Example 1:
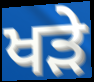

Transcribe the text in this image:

ਖਡ਼ੇ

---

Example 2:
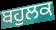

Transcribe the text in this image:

ਬਹੁਲਕ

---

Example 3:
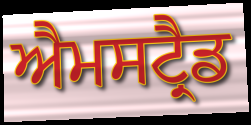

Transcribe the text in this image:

ਐਮਸਟ੍ਰੈਡ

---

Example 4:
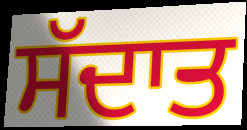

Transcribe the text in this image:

ਸੱਦਾਤ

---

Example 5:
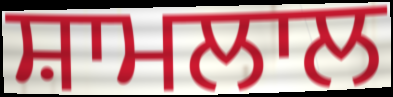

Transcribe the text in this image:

ਸ਼ਾਮਲਾਲ